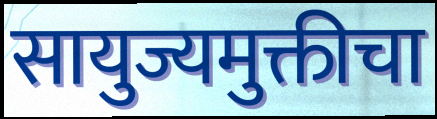
सायुज्यमुक्तीचा